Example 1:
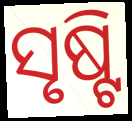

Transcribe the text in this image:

ସୃଷ୍ଟି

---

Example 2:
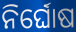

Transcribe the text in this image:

ନିର୍ଘୋଷ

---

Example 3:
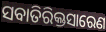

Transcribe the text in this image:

ସବାତିରିକ୍ତସାରେଣ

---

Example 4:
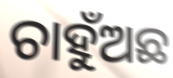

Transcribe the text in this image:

ଚାହୁଁଅଛ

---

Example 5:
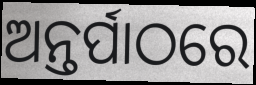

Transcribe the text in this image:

ଅନ୍ତର୍ପାଠରେ